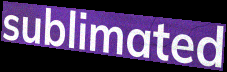
sublimated